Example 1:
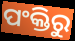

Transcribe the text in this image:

ପଂକ୍ତିରୁ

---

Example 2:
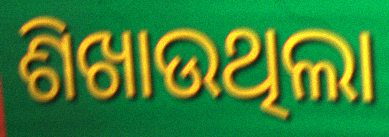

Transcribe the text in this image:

ଶିଖାଉଥିଲା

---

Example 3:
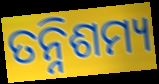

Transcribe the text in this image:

ତନ୍ନିଶମ୍ୟ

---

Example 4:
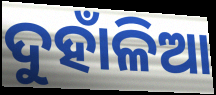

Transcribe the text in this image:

ଦୁହାଁଳିଆ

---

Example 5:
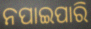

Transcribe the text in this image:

ନପାଇପାରି